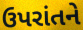
ઉપરાંતને